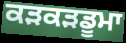
ਕੜਕੜਡੂਮਾ